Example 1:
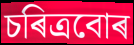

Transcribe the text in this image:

চৰিত্ৰবোৰ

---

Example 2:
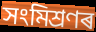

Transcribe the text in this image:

সংমিশ্ৰণৰ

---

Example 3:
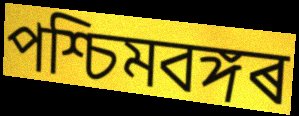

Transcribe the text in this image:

পশ্চিমবঙ্গৰ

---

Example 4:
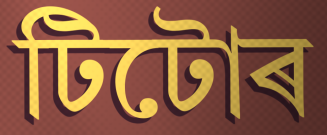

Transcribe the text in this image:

টিটোৰ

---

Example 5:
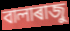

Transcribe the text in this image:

বালাৰাজু